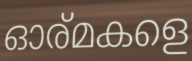
ഓര്മകളെ